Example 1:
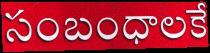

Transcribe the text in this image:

సంబంధాలకే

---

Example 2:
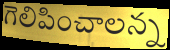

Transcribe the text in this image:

గెలిపించాలన్న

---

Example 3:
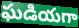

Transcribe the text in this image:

ఘడియగా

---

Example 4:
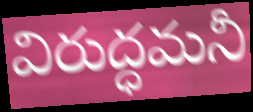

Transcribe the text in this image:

విరుద్ధమనీ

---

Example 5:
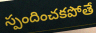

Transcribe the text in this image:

స్పందించకపోతే